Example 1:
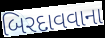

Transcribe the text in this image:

બિરદાવવાના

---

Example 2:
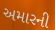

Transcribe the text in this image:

અમારની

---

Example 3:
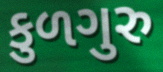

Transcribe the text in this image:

કુળગુરુ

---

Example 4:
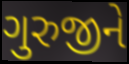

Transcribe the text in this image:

ગુરુજીને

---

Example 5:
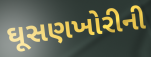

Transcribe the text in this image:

ઘૂસણખોરીની